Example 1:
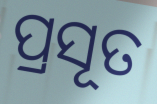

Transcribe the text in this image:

ପ୍ରସୂତ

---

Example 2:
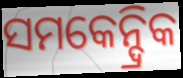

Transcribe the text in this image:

ସମକେନ୍ଦ୍ରିକ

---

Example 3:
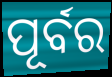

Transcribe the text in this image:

ପୂର୍ବର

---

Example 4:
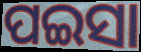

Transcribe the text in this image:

ପଇସା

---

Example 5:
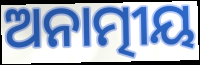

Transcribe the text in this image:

ଅନାତ୍ମୀୟ